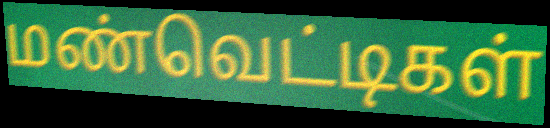
மண்வெட்டிகள்